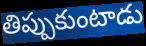
తిప్పుకుంటాడు